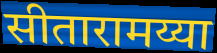
सीतारामय्या